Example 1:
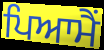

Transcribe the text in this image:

ਪਿਆਮੈਂ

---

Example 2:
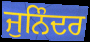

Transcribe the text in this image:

ਜੁਨਿੰਦਰ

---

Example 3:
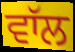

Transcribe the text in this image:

ਵਾੱਲ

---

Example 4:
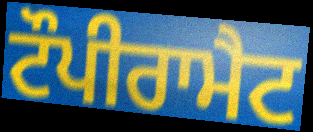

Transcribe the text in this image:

ਟੌਪੀਰਾਮੈਟ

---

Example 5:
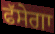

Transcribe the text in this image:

ਫੱਸੇਗਾ